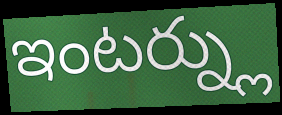
ఇంటర్న్లు